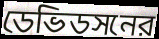
ডেভিডসনের